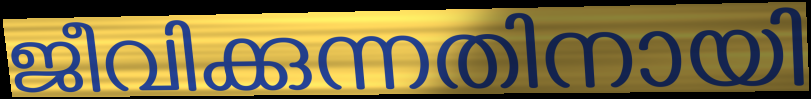
ജീവിക്കുന്നതിനായി